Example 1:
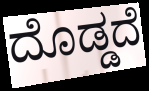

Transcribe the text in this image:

ದೊಡ್ಡದೆ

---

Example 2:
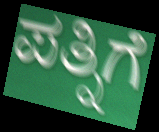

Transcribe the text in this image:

ಪತ್ನಿಗೆ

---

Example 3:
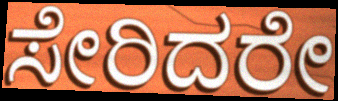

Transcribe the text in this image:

ಸೇರಿದರೇ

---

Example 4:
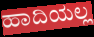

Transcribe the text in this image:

ಹಾದಿಯಲ್ಲ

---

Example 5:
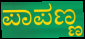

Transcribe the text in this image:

ಪಾಪಣ್ಣ